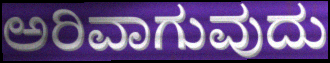
ಅರಿವಾಗುವುದು